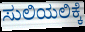
ಸುಲಿಯಲಿಕ್ಕೆ